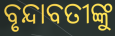
ବୃନ୍ଦାବତୀଙ୍କୁ